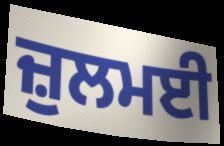
ਜ਼ੁਲਮਈ